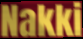
Nakki